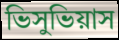
ভিসুভিয়াস